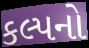
કલ્પનો